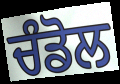
ਚੰਡੋਲ